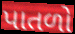
પાતળો